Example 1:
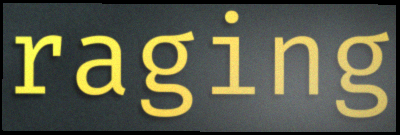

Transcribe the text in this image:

raging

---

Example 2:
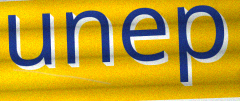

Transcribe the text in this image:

unep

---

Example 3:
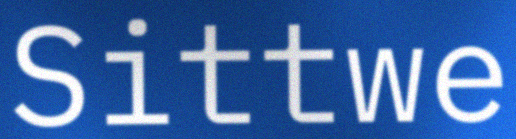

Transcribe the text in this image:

Sittwe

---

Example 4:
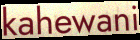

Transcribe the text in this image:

kahewani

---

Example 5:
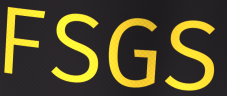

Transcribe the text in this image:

FSGS